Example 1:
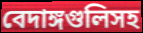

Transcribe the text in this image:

বেদাঙ্গগুলিসহ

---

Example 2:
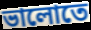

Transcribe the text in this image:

ভালোতে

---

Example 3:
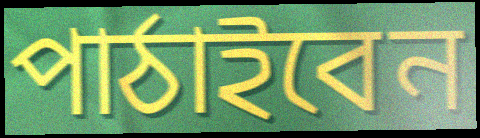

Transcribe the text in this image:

পাঠাইবেন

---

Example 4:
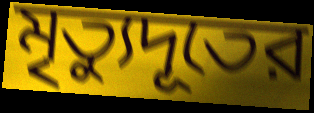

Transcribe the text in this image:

মৃত্যুদূতের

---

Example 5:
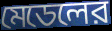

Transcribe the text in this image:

মেডেলের